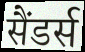
सैंडर्स